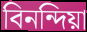
বিনন্দিয়া